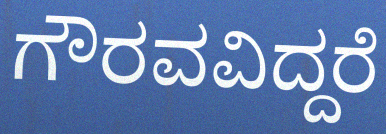
ಗೌರವವಿದ್ದರೆ